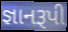
જ્ઞાનરૂપી